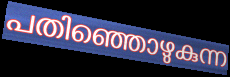
പതിഞ്ഞൊഴുകുന്ന